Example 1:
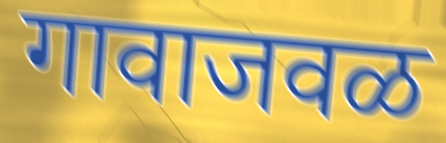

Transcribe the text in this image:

गावाजवळ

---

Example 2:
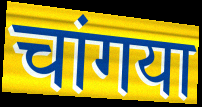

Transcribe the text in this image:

चांगया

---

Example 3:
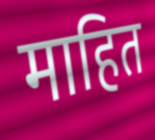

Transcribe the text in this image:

माहित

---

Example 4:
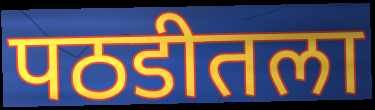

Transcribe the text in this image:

पठडीतला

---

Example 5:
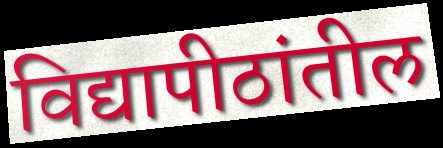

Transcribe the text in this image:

विद्यापीठांतील